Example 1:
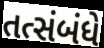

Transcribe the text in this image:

તત્સંબંધે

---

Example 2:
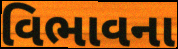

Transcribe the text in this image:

વિભાવના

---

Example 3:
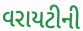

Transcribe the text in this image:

વરાયટીની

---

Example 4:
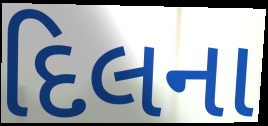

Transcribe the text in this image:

દિલના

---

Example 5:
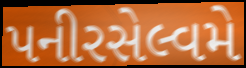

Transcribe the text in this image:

પનીરસેલ્વમે